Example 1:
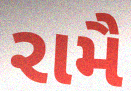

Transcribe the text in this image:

રામૈ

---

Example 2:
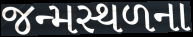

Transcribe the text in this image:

જન્મસ્થળના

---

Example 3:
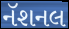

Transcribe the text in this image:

નૅશનલ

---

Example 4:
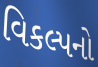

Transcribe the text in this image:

વિકલ્પનો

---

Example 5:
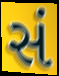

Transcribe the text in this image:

સં